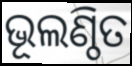
ଭୂଲଣ୍ଠିତ